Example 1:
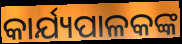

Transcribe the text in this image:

କାର୍ଯ୍ୟପାଳକଙ୍କ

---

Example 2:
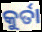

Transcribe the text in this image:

କୁର୍ତା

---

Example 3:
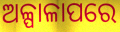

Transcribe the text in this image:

ଅଳ୍ପାଳାପରେ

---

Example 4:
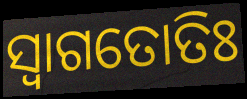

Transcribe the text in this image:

ସ୍ଵାଗତୋତିଃ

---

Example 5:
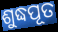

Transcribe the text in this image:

ଶୁଦ୍ଧପୂତ